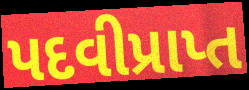
પદવીપ્રાપ્ત